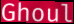
Ghoul